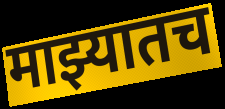
माझ्यातच